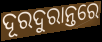
ଦୂରଦୁରାନ୍ତରେ